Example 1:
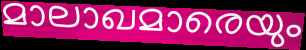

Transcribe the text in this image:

മാലാഖമാരെയും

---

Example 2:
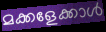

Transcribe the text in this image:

മക്കളേക്കാൾ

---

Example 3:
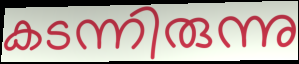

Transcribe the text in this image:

കടന്നിരുന്നു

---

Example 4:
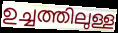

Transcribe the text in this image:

ഉച്ചത്തിലുള്ള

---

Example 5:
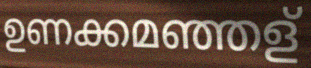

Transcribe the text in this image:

ഉണക്കമഞ്ഞള്